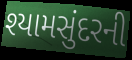
શ્યામસુંદરની